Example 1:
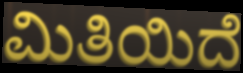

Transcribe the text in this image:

ಮಿತಿಯಿದೆ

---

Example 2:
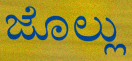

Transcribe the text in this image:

ಜೊಲ್ಲು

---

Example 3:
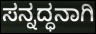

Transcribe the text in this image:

ಸನ್ನದ್ಧನಾಗಿ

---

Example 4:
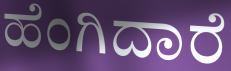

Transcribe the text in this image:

ಹೆಂಗಿದಾರೆ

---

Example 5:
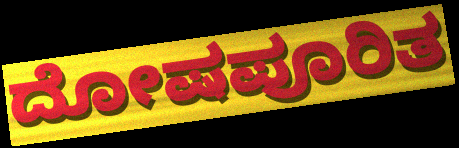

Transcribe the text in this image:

ದೋಷಪೂರಿತ